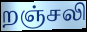
றஞ்சலி